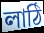
লাঠি